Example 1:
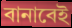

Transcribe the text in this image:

বানাবেই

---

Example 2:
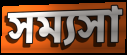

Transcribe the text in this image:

সম্যসা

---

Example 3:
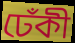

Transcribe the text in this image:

ঢেঁকী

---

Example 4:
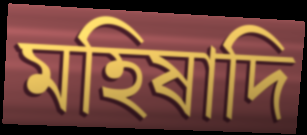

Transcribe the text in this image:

মহিষাদি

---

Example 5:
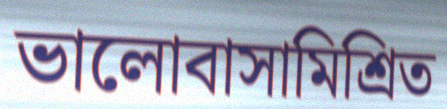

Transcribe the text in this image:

ভালোবাসামিশ্রিত